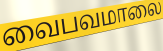
வைபவமாலை